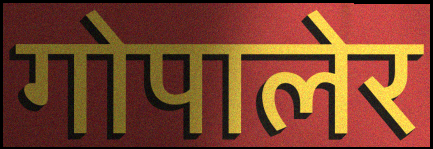
गोपालेर